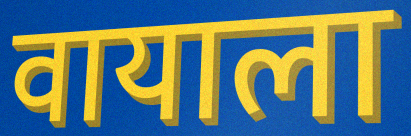
वायाला